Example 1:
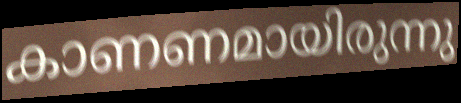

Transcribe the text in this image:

കാണണമായിരുന്നു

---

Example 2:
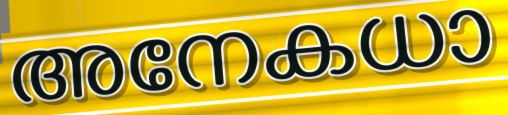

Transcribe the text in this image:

അനേകധാ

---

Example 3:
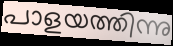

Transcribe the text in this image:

പാളയത്തിന്നു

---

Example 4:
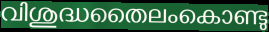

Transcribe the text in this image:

വിശുദ്ധതൈലംകൊണ്ടു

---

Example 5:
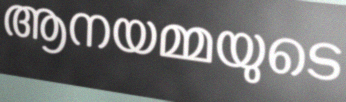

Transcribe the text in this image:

ആനയമ്മയുടെ